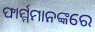
ଫାର୍ମ୍ମମାନଙ୍କରେ